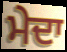
ਮੇਦਾ